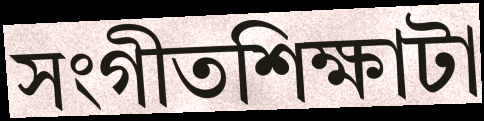
সংগীতশিক্ষাটা